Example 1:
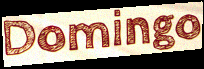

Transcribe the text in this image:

Domingo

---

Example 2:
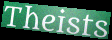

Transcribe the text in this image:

Theists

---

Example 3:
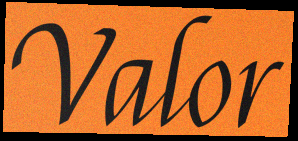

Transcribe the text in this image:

Valor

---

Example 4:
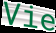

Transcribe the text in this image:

Vie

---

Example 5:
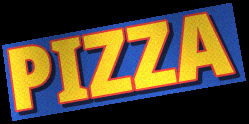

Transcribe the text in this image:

PIZZA